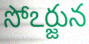
సోఽర్జున